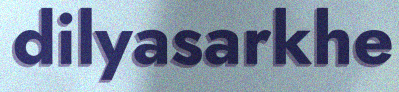
dilyasarkhe